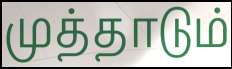
முத்தாடும்